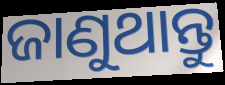
ଜାଣୁଥାନ୍ତୁ